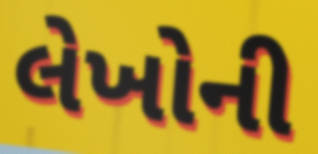
લેખોની